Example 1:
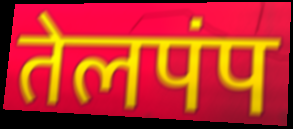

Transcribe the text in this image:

तेलपंप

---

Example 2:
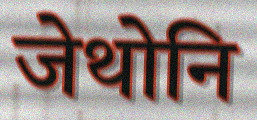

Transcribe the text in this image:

जेथोनि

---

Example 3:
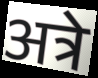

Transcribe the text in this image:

अत्रे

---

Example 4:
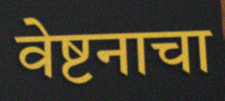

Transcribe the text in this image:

वेष्टनाचा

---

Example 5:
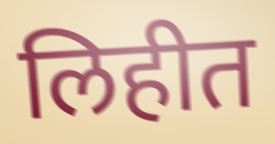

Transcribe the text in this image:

लिहीत